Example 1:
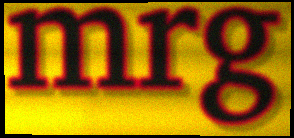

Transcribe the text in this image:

mrg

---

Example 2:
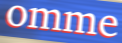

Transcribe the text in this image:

omme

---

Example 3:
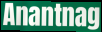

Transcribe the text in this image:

Anantnag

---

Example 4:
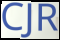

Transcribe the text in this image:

CJR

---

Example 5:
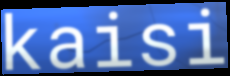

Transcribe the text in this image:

kaisi